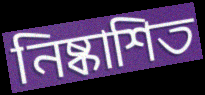
নিষ্কাশিত